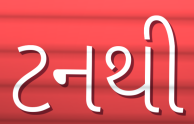
ટનથી